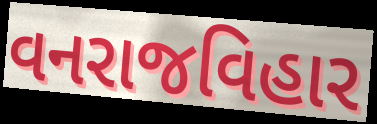
વનરાજવિહાર